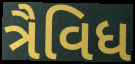
ત્રૈવિધ